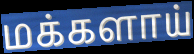
மக்களாய்